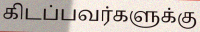
கிடப்பவர்களுக்கு